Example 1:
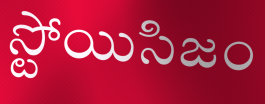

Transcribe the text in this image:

స్టోయిసిజం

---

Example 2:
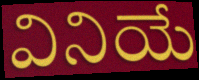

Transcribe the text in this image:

వినియే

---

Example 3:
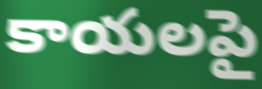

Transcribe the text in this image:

కాయలపై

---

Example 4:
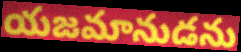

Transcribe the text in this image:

యజమానుడను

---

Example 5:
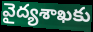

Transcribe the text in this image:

వైద్యశాఖకు